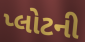
પ્લોટની